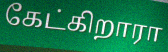
கேட்கிறாரா